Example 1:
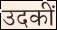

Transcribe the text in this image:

उदकीं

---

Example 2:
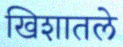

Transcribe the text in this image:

खिशातले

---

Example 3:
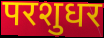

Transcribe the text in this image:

परशुधर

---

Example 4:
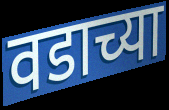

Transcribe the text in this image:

वडाच्या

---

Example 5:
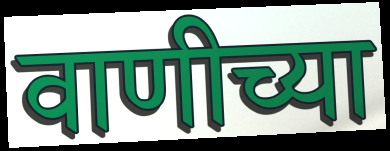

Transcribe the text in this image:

वाणीच्या